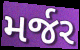
મર્જર